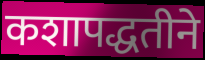
कशापद्धतीने